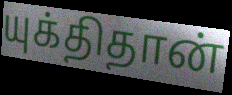
யுக்திதான்